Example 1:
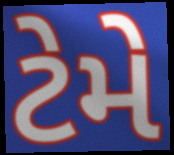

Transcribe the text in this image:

ટેમે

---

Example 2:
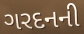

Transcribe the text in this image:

ગરદનની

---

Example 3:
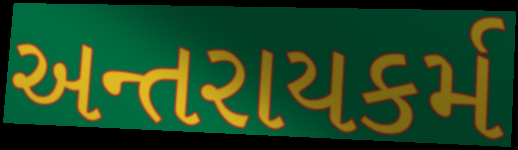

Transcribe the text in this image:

અન્તરાયકર્મ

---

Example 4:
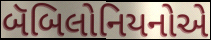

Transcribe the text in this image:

બૅબિલોનિયનોએ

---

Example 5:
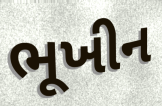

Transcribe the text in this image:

ભૂખીન